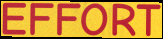
EFFORT